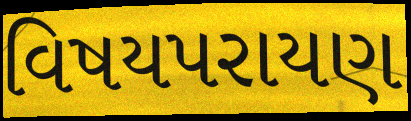
વિષયપરાયણ